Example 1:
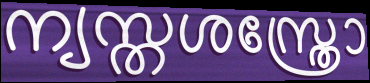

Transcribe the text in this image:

ന്യസ്തശസ്ത്രോ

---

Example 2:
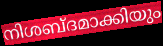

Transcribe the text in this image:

നിശബ്ദമാക്കിയും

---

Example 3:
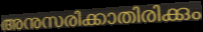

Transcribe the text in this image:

അനുസരിക്കാതിരിക്കും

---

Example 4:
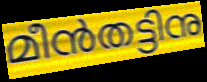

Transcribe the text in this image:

മീൻതട്ടിനു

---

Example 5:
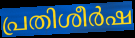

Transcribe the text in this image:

പ്രതിശീർഷ